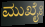
ಮುಖೈಃ